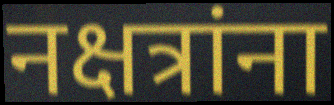
नक्षत्रांना